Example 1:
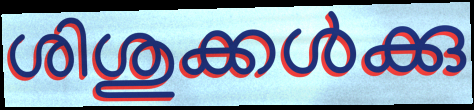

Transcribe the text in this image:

ശിശുക്കൾക്കു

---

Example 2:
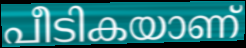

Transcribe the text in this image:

പീടികയാണ്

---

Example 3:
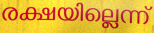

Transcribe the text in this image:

രക്ഷയില്ലെന്ന്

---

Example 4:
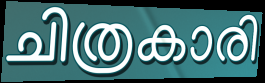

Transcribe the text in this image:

ചിത്രകാരി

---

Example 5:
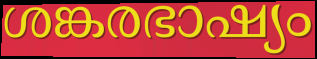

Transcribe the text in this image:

ശങ്കരഭാഷ്യം